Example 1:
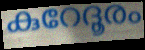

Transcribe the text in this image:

കുറേദൂരം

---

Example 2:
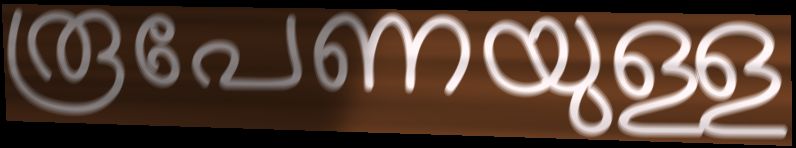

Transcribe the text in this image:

രൂപേണയുള്ള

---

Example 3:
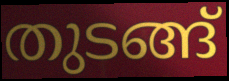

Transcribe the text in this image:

തുടങ്ങ്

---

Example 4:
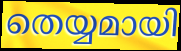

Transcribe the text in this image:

തെയ്യമായി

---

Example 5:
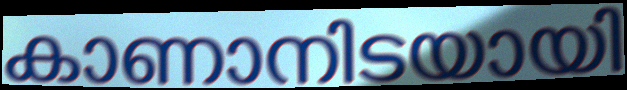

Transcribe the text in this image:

കാണാനിടയായി